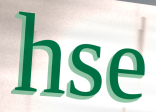
hse